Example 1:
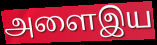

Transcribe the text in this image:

அளைஇய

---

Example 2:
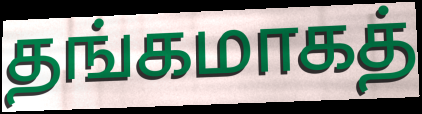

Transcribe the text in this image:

தங்கமாகத்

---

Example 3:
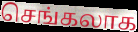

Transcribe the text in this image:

செங்கலாக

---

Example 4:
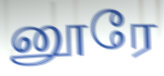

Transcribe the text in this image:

னூரே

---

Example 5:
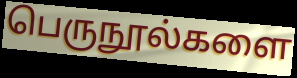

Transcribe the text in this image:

பெருநூல்களை